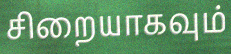
சிறையாகவும்